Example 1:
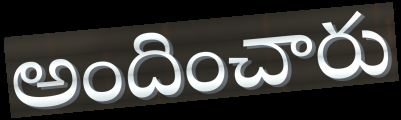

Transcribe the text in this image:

అందించారు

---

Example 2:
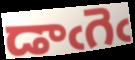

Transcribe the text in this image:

డాఁగెఁ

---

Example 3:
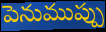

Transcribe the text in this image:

పెనుముప్పు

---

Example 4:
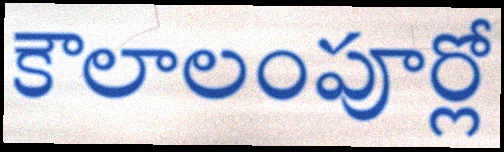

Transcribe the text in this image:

కౌలాలంపూర్లో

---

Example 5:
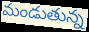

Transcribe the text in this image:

మండుతున్న